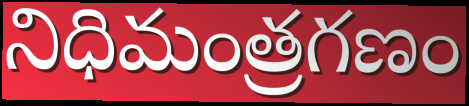
నిధిమంత్రగణం